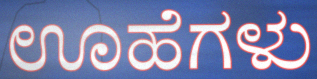
ಊಹೆಗಳು